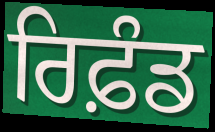
ਰਿਫ਼ੰਡ